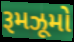
રૂમઝૂમો